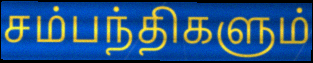
சம்பந்திகளும்